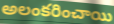
అలంకరించాయి